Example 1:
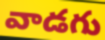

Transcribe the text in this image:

వాడగు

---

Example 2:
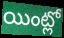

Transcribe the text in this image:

యింట్లో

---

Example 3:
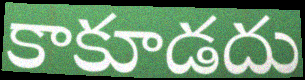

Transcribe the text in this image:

కాకూడదు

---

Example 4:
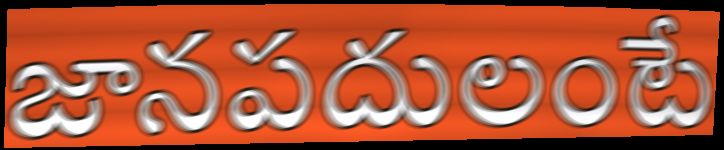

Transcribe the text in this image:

జానపదులంటే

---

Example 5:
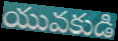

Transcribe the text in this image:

యువకుడి